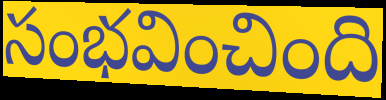
సంభవించింది